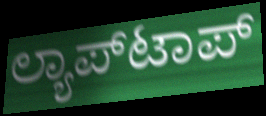
ಲ್ಯಾಪ್‍ಟಾಪ್